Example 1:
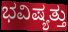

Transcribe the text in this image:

ಭವಿಷ್ಯತ್ತು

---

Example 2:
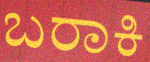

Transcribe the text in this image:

ಬರಾಕಿ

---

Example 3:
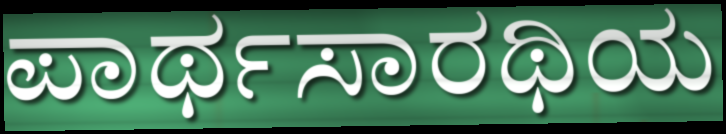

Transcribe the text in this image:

ಪಾರ್ಥಸಾರಥಿಯ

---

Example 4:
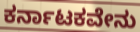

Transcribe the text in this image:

ಕರ್ನಾಟಕವೇನು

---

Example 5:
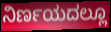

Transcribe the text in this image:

ನಿರ್ಣಯದಲ್ಲೂ